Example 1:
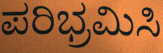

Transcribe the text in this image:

ಪರಿಭ್ರಮಿಸಿ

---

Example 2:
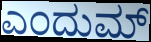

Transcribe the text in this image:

ಎಂದುಮ್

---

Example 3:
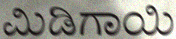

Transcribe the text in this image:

ಮಿಡಿಗಾಯಿ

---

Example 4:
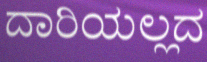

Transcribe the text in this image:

ದಾರಿಯಲ್ಲದ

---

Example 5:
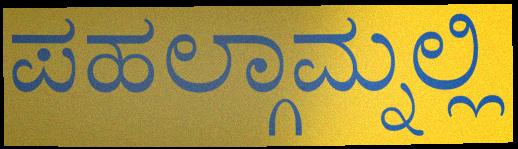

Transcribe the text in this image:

ಪಹಲ್ಗಾಮ್ನಲ್ಲಿ